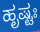
ಹೃಷ್ಟಃ